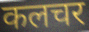
कलचर